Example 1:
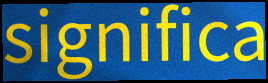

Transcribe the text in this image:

significa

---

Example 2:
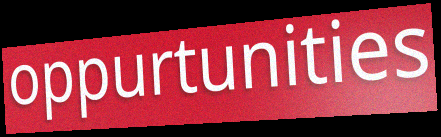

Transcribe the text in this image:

oppurtunities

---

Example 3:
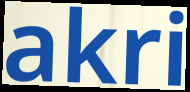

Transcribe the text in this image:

akri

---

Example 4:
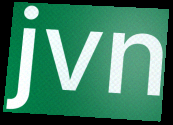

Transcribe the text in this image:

jvn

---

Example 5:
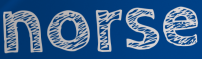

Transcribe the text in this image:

norse